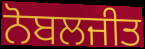
ਨੋਬਲਜੀਤ